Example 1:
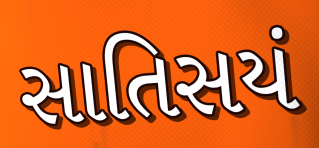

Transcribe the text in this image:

સાતિસયં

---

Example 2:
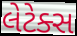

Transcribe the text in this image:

લેટેક્સ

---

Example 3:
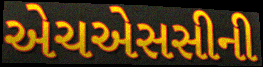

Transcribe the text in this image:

એચએસસીની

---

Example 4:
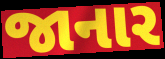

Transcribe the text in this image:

જાનાર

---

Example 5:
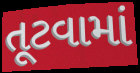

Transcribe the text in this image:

તૂટવામાં